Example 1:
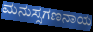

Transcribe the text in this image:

ಮನುಸ್ಸಗಣನಾಯ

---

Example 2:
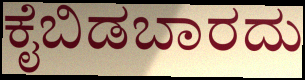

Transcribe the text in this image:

ಕೈಬಿಡಬಾರದು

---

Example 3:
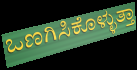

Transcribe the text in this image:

ಒಣಗಿಸಿಕೊಳ್ಳುತ್ತಾ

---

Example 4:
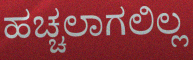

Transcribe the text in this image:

ಹಚ್ಚಲಾಗಲಿಲ್ಲ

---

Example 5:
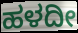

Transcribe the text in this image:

ಹಳದೀ